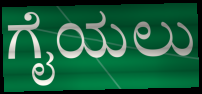
ಗೈಯಲು